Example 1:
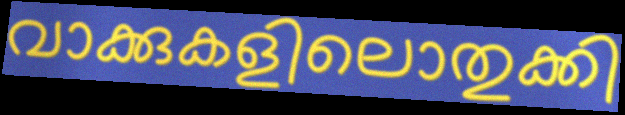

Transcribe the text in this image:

വാക്കുകളിലൊതുക്കി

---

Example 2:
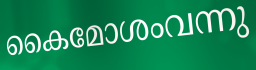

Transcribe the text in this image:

കൈമോശംവന്നു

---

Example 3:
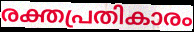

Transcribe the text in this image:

രക്തപ്രതികാരം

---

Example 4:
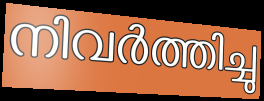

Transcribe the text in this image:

നിവർത്തിച്ചു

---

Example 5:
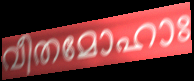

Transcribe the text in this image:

വീതമോഹാഃ